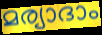
മര്യാദാം